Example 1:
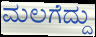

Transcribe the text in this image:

ಮಲಗೆದ್ದು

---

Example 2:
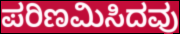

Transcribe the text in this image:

ಪರಿಣಮಿಸಿದವು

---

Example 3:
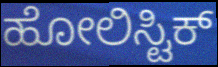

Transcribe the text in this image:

ಹೋಲಿಸ್ಟಿಕ್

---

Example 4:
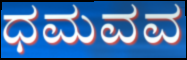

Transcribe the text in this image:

ಧಮವವ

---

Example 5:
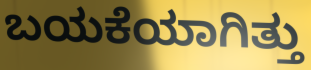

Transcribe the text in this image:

ಬಯಕೆಯಾಗಿತ್ತು